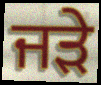
ਜੜੇ